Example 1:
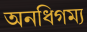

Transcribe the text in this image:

অনধিগম্য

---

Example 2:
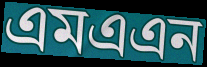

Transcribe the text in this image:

এমএএন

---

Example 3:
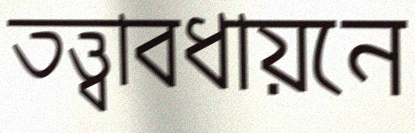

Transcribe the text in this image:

তত্ত্বাবধায়নে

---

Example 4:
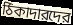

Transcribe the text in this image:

ঠিকাদারদের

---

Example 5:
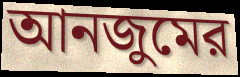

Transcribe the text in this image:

আনজুমের